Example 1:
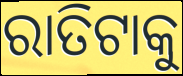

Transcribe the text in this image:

ରାତିଟାକୁ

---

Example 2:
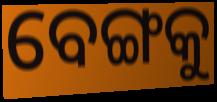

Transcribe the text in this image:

ବେଙ୍ଗକୁ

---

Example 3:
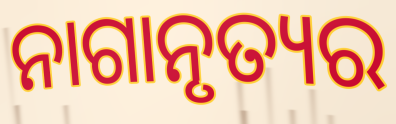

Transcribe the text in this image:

ନାଗାନୃତ୍ୟର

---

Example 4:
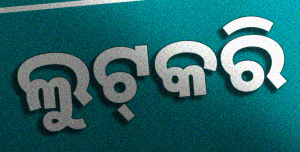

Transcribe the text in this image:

ଲୁଟ୍‍କରି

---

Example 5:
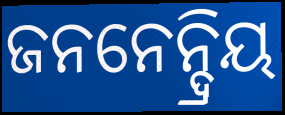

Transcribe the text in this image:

ଜନନେନ୍ଦ୍ରିୟ